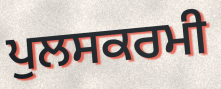
ਪੁਲਸਕਰਮੀ